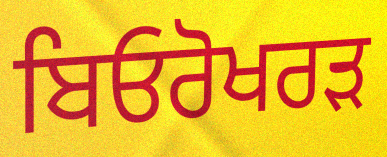
ਬਿਓਰੋਖਰੜ